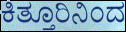
ಕಿತ್ತೂರಿನಿಂದ